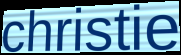
christie